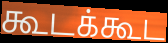
கூடக்கூட